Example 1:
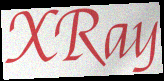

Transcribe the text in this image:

XRay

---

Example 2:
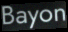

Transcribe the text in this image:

Bayon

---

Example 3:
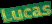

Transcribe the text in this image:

Lucas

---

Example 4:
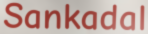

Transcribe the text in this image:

Sankadal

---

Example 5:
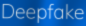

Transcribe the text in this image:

Deepfake